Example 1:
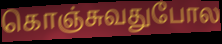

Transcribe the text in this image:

கொஞ்சுவதுபோல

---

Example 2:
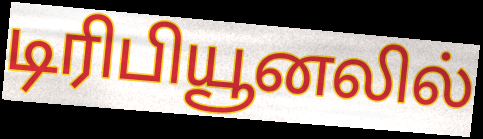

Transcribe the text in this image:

டிரிபியூனலில்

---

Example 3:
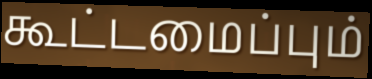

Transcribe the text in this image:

கூட்டமைப்பும்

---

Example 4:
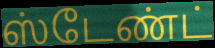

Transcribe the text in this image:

ஸ்டேண்ட்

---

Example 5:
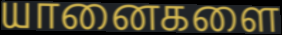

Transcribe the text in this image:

யானைகளை